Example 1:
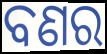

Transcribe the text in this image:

ବଣର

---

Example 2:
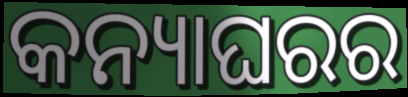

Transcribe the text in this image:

କନ୍ୟାଘରର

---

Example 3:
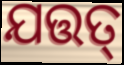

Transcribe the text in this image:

ଯତ୍ତତ୍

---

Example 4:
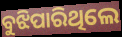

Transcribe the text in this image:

ବୁଝିପାରିଥିଲେ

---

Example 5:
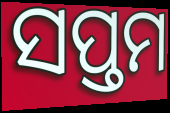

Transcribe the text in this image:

ସପ୍ତମ